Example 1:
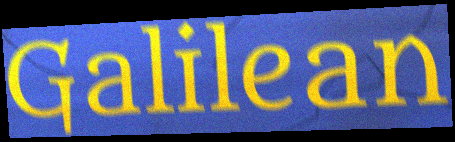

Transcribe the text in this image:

Galilean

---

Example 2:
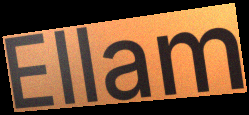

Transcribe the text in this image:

Ellam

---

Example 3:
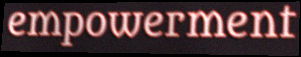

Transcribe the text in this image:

empowerment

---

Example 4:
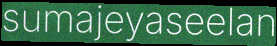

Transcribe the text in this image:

sumajeyaseelan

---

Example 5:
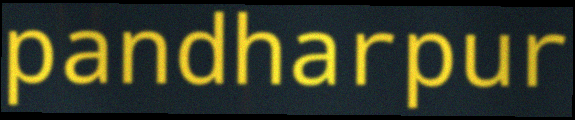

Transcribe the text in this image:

pandharpur